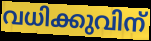
വധിക്കുവിന്